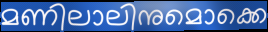
മണിലാലിനുമൊക്കെ